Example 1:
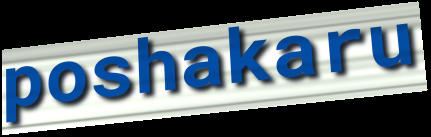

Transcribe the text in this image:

poshakaru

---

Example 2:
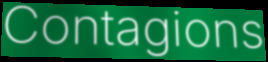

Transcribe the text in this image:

Contagions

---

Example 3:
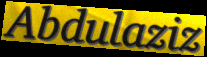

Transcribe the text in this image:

Abdulaziz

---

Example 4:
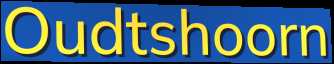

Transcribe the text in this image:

Oudtshoorn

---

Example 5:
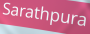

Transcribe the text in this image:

Sarathpura